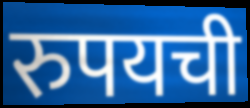
रुपयची